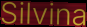
Silvina